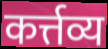
कर्त्तव्य